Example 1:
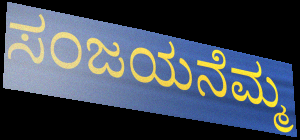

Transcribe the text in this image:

ಸಂಜಯನೆಮ್ಮ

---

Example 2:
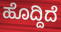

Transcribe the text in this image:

ಹೊದ್ದಿದೆ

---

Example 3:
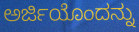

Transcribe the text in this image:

ಅರ್ಜಿಯೊಂದನ್ನು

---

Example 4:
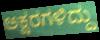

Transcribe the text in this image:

ಅಕ್ಷರಗಳಿದ್ದು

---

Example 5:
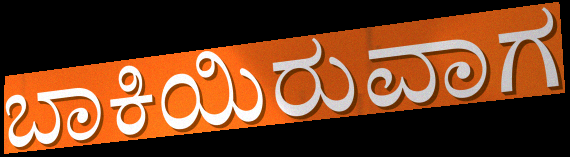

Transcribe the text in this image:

ಬಾಕಿಯಿರುವಾಗ